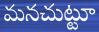
మనచుట్టూ